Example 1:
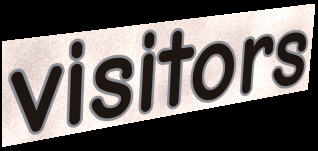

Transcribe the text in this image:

visitors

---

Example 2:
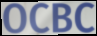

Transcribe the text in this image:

OCBC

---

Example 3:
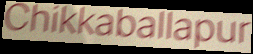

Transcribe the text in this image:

Chikkaballapur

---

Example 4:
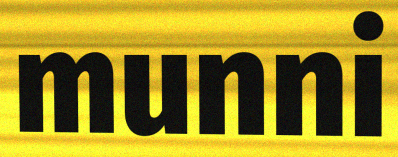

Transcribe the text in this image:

munni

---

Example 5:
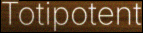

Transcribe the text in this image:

Totipotent